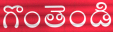
గొంతెండి